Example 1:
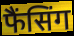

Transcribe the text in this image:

फैंसिंग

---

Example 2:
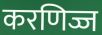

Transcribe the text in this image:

करणिज्ज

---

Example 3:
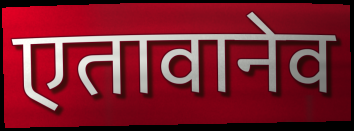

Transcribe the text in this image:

एतावानेव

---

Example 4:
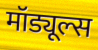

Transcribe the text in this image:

मॉड्यूल्स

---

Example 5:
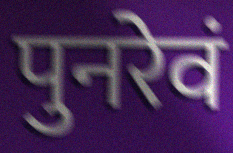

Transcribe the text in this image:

पुनरेवं